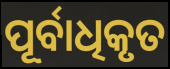
ପୂର୍ବାଧିକୃତ